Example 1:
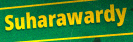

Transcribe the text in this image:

Suharawardy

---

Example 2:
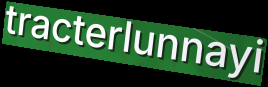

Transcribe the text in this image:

tracterlunnayi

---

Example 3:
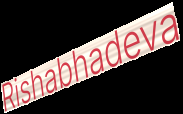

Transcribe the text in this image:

Rishabhadeva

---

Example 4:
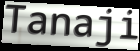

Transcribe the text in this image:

Tanaji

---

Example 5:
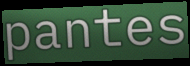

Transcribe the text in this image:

pantes